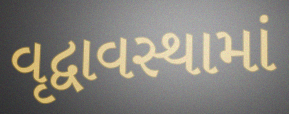
વૃદ્વાવસ્થામાં